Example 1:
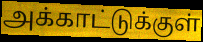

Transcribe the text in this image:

அக்காட்டுக்குள்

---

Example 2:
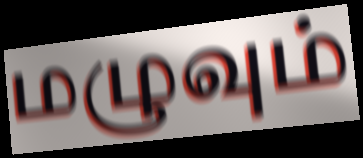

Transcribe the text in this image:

மழுவும்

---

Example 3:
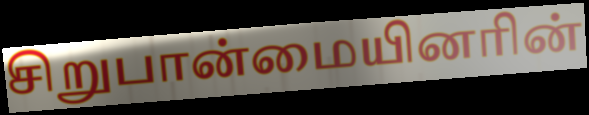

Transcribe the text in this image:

சிறுபான்மையினரின்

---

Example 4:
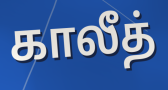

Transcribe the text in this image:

காலீத்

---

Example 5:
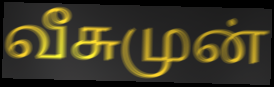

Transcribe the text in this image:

வீசுமுன்